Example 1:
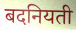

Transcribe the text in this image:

बदनियती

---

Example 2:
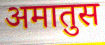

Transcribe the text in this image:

अमातुस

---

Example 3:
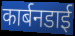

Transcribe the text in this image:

कार्बनडाई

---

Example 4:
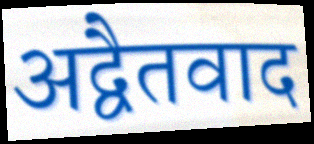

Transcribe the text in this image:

अद्वैतवाद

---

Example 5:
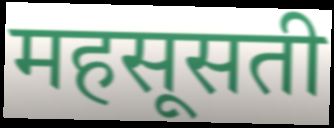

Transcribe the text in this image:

महसूसती